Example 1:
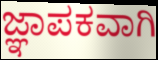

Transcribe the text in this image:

ಜ್ಞಾಪಕವಾಗಿ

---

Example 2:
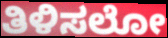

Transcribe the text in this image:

ತಿಳಿಸಲೋ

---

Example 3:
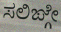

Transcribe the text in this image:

ಸಲಿಙ್ಗೇ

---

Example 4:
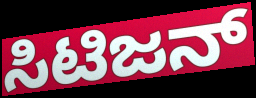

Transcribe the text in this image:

ಸಿಟಿಜನ್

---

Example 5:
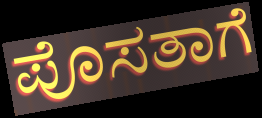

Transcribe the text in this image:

ಪೊಸತಾಗೆ